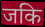
जकि